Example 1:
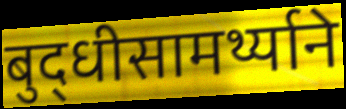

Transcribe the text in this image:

बुद्धीसामर्थ्याने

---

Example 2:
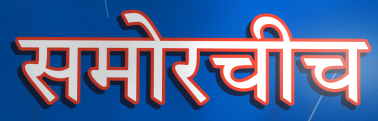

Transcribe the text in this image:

समोरचीच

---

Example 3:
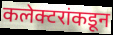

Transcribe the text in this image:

कलेक्टरांकडून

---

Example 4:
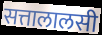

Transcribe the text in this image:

सत्तालालसी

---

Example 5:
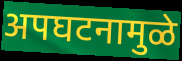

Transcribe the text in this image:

अपघटनामुळे